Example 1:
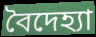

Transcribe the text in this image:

বৈদেহ্যা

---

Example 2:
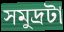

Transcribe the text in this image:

সমুদ্রটা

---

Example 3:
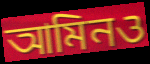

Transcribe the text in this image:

আমিনও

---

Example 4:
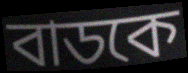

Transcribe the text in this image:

বাডকে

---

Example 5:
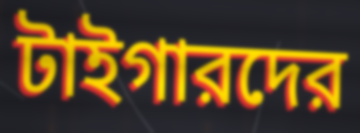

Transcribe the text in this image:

টাইগারদের